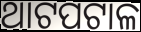
ଥାଟପଟାଳ